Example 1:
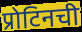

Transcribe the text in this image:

प्रोटिनची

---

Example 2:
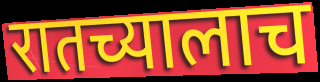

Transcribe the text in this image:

रातच्यालाच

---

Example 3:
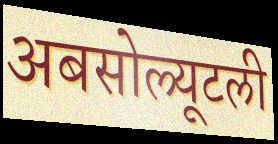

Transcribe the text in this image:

अबसोल्यूटली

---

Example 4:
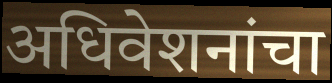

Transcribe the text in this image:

अधिवेशनांचा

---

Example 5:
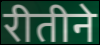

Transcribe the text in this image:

रीतीने